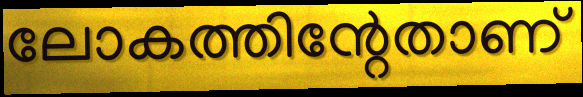
ലോകത്തിന്റേതാണ്